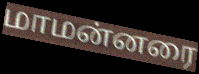
மாமன்னரை